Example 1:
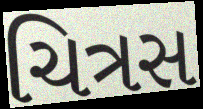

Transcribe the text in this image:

ચિત્રસ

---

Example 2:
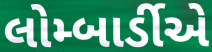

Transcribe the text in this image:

લોમ્બાર્ડીએ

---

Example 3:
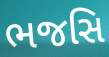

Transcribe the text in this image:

ભજસિ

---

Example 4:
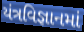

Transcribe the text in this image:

યંત્રવિજ્ઞાનમાં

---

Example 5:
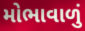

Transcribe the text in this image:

મોભાવાળું